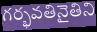
గర్భవతినైతిని